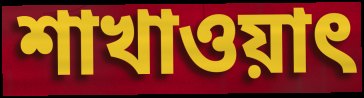
শাখাওয়াৎ